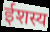
ईशस्य